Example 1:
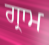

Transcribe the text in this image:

ਗ੍ਰਾਮ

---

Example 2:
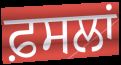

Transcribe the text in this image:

ਫ਼ਸਲਾਂ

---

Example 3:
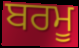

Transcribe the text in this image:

ਬਰਮੂ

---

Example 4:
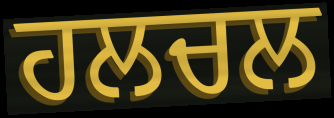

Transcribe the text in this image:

ਹਲਚਲ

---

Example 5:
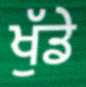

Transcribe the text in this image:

ਖੁੱਡੇ